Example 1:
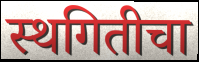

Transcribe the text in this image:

स्थगितीचा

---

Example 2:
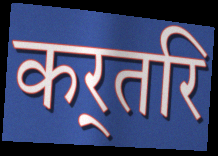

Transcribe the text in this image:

कर्तरि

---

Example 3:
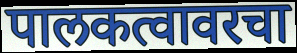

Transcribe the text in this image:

पालकत्वावरचा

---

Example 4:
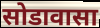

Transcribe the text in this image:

सोडावासा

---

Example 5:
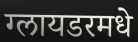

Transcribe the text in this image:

ग्लायडरमधे